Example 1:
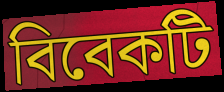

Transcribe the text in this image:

বিবেকটি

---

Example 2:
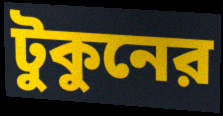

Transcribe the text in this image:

টুকুনের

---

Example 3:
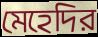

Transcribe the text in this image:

মেহেদির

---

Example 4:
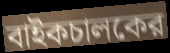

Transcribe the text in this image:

বাইকচালকের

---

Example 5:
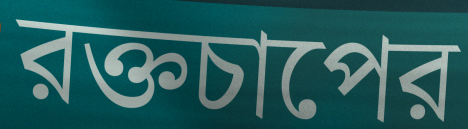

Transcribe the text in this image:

রক্তচাপের